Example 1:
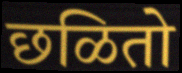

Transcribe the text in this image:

छळितो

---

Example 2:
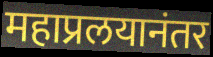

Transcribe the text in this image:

महाप्रलयानंतर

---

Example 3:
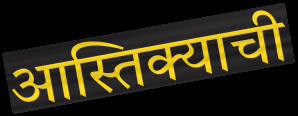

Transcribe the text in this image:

आस्तिक्याची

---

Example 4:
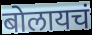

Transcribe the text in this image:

बोलायचं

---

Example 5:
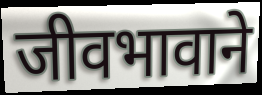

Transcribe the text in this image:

जीवभावाने